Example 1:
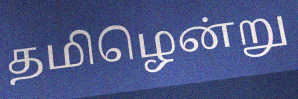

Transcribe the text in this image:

தமிழென்று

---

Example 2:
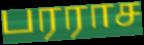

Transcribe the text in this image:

பரராச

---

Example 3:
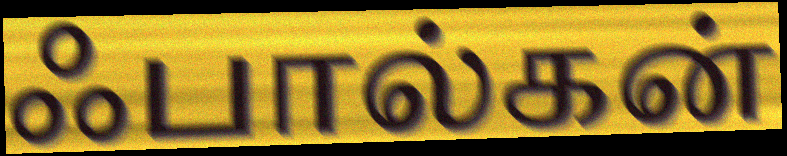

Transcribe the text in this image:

ஃபால்கன்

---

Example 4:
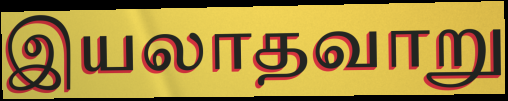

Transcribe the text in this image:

இயலாதவாறு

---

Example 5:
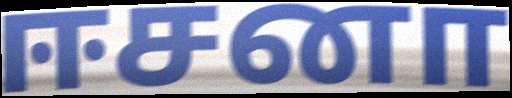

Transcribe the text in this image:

ஈசனா